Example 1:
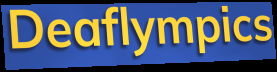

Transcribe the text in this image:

Deaflympics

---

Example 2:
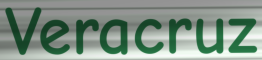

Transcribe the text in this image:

Veracruz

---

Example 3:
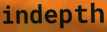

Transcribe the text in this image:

indepth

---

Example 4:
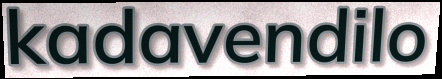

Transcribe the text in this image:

kadavendilo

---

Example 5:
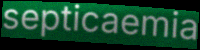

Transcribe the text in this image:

septicaemia